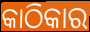
କାଠିକାର